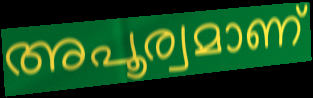
അപൂര്വമാണ്